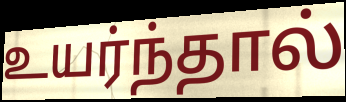
உயர்ந்தால்